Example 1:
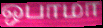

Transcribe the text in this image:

ஒபாமா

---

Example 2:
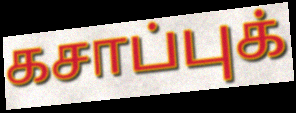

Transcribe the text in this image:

கசாப்புக்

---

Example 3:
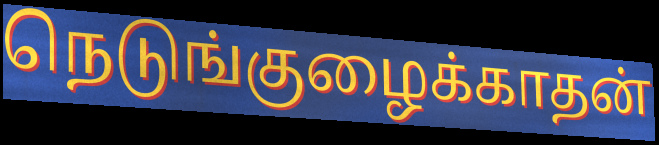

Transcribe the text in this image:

நெடுங்குழைக்காதன்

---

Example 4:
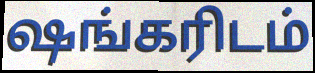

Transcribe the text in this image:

ஷங்கரிடம்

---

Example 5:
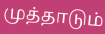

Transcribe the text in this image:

முத்தாடும்